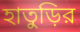
হাতুড়ির